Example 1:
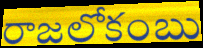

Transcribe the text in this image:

రాజలోకంబు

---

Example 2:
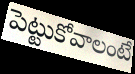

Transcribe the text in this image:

పెట్టుకోవాలంటే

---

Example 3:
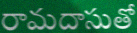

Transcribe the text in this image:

రామదాసుతో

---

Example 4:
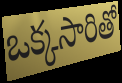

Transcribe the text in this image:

ఒక్కసారితో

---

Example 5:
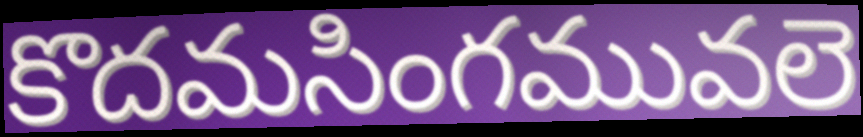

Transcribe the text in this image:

కొదమసింగమువలె